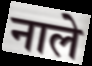
नाले